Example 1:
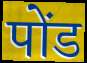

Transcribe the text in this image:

पोंड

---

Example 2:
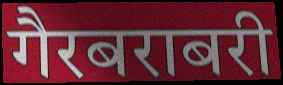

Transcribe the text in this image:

गैरबराबरी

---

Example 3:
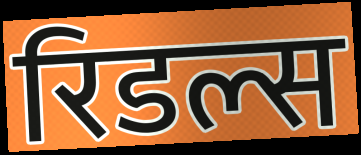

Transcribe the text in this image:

रिडल्स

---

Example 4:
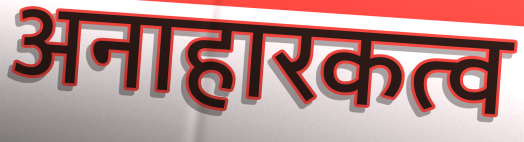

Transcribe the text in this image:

अनाहारकत्व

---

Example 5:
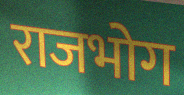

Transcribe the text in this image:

राजभोग